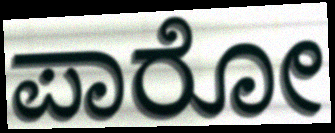
ಪಾರೋ